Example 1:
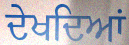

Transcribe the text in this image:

ਦੇਖਦਿਆਂ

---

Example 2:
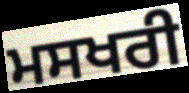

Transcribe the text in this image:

ਮਸਖਰੀ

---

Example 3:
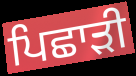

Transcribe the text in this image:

ਪਿਛਾੜੀ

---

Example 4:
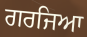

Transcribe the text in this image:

ਗਰਜਿਆ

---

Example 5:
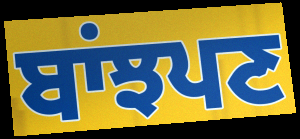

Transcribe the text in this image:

ਬਾਂਝਪਣ